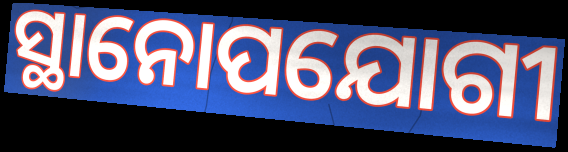
ସ୍ଥାନୋପଯୋଗୀ